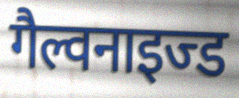
गैल्वनाइज्ड